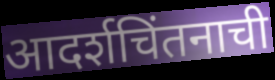
आदर्शचिंतनाची